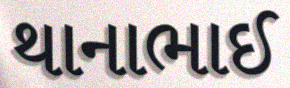
થાનાભાઈ